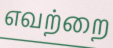
எவற்றை